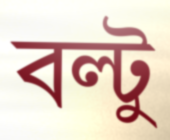
বল্টু